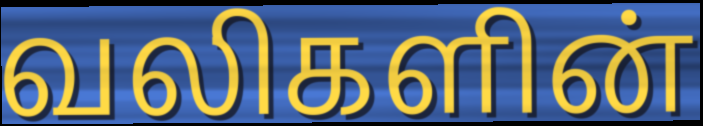
வலிகளின்